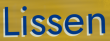
Lissen